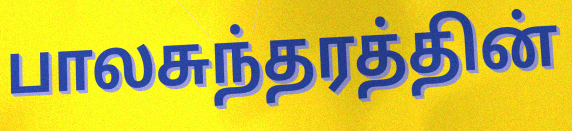
பாலசுந்தரத்தின்